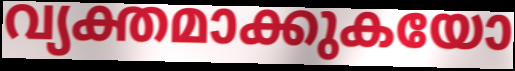
വ്യക്തമാക്കുകയോ